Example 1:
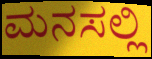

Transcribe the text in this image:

ಮನಸಲ್ಲಿ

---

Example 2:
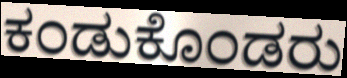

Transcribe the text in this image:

ಕಂಡುಕೊಂಡರು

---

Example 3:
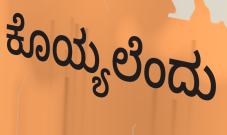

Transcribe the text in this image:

ಕೊಯ್ಯಲೆಂದು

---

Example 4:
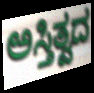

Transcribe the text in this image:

ಅಸ್ತಿತ್ವದ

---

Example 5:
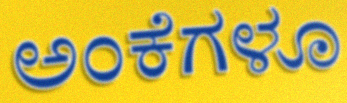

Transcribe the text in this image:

ಅಂಕೆಗಳೂ